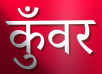
कुँवर